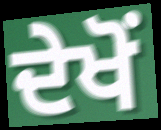
ਦੇਖੋਂ